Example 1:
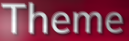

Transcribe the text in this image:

Theme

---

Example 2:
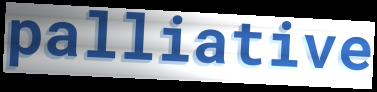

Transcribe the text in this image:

palliative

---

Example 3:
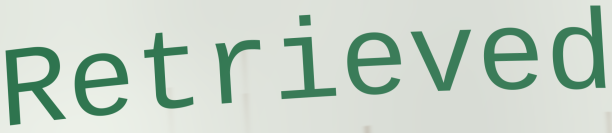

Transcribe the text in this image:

Retrieved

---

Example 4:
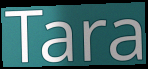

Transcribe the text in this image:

Tara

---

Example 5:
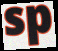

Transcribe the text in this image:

sp